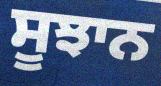
ਸੂਝਾਨ